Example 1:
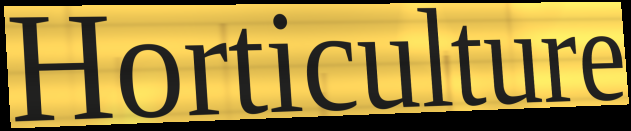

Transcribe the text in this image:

Horticulture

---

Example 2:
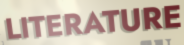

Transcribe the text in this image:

LITERATURE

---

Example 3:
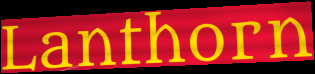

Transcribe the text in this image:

Lanthorn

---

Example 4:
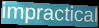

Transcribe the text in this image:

impractical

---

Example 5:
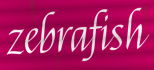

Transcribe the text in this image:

zebrafish